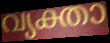
വ്യക്താ